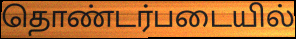
தொண்டர்படையில்